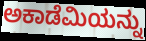
ಅಕಾಡೆಮಿಯನ್ನು